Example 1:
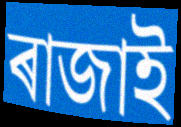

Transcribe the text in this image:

ৰাজাই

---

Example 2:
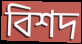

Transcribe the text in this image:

বিশদ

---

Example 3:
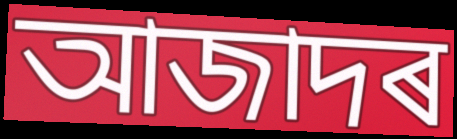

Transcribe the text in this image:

আজাদৰ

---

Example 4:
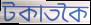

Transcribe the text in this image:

টকাতকৈ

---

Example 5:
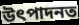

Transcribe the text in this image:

উৎপাদনত